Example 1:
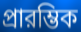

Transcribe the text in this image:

প্রারম্ভিক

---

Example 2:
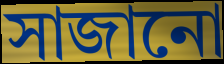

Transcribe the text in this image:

সাজানো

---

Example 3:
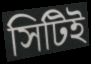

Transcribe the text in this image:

সিটিই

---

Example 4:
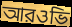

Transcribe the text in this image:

আরওভি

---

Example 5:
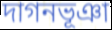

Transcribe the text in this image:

দাগনভূঞা